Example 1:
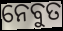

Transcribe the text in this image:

ନେବୁତ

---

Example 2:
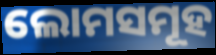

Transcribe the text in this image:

ଲୋମସମୂହ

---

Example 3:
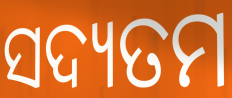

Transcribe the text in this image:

ସଦ୍ୟତମ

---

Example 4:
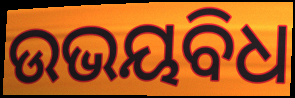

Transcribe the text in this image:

ଉଭୟବିଧ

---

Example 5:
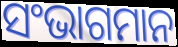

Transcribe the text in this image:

ସଂଭାଗମାନ